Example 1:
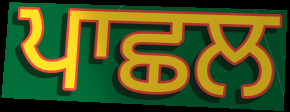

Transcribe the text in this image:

ਪਾਛਲ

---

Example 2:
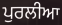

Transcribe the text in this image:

ਪੁਰਲੀਆ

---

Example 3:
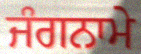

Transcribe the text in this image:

ਜੰਗਨਾਮੇ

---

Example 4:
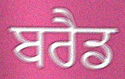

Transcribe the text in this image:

ਬਰੈਡ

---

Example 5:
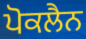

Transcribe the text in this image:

ਪੋਕਲੈਨ